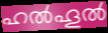
ഹൽഹൂൽ